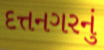
દત્તનગરનું